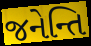
જનેન્તિ